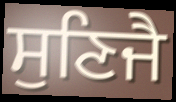
ਸੁਣਿਜੈ